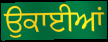
ਉਕਾਈਆਂ